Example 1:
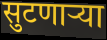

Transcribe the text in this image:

सुटणाऱ्या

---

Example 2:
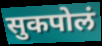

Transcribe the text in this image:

सुकपोलं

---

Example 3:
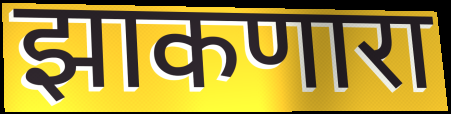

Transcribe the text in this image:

झाकणारा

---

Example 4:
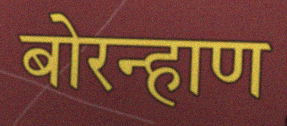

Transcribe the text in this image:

बोरन्हाण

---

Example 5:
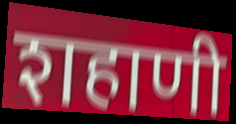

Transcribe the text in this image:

शहाणी